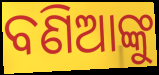
ବଣିଆଙ୍କୁ